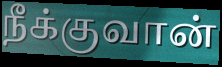
நீக்குவான்